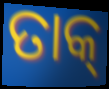
ତାକ୍